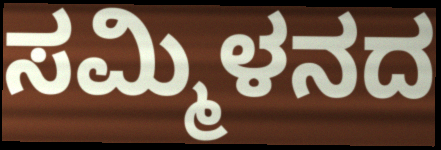
ಸಮ್ಮಿಳನದ